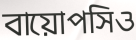
বায়োপসিও